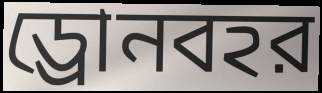
ড্রোনবহর